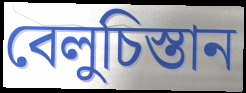
বেলুচিস্তান